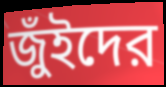
জুঁইদের